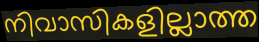
നിവാസികളില്ലാത്ത